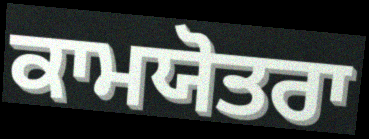
ਕਾਮਯੋਤਰਾ